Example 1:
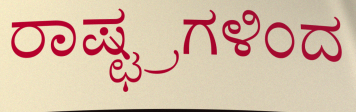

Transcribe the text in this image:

ರಾಷ್ಟ್ರಗಳಿಂದ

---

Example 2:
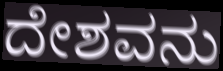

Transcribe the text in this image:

ದೇಶವನು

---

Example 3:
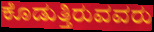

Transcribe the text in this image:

ಕೊಡುತ್ತಿರುವವರು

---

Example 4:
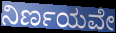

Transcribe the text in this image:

ನಿರ್ಣಯವೇ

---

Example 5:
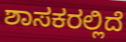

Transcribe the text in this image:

ಶಾಸಕರಲ್ಲಿದೆ